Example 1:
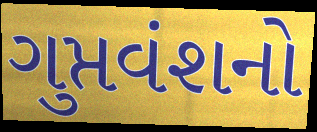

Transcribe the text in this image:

ગુપ્તવંશનો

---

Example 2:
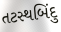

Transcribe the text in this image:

તટસ્થબિંદુ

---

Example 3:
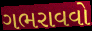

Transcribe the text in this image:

ગભરાવવો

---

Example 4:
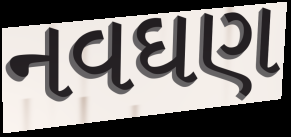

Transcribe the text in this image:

નવઘણ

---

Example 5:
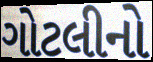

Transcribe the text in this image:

ગોટલીનો